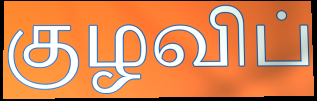
குழவிப்